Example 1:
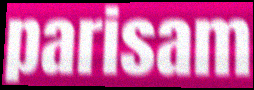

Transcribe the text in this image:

parisam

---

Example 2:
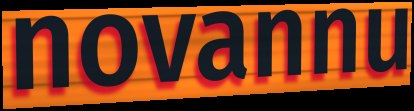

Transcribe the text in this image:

novannu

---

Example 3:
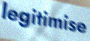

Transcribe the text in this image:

legitimise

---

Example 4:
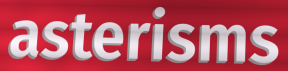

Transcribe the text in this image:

asterisms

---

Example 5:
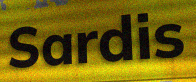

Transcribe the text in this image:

Sardis